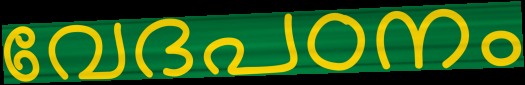
വേദപഠനം